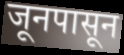
जूनपासून